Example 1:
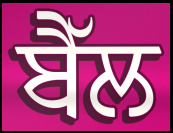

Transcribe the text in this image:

ਬੈੱਲ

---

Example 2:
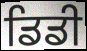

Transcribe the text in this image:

ਡਿਡੀ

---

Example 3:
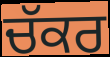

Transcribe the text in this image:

ਚੱਕਰ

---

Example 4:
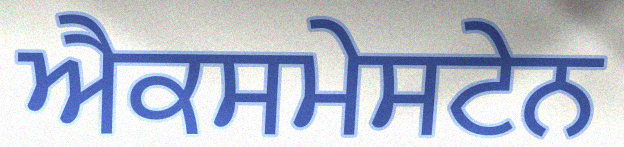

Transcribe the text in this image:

ਐਕਸਮੇਸਟੇਨ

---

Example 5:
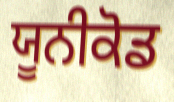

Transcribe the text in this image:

ਯੂਨੀਕੋਡ